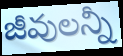
జీవులన్నీ